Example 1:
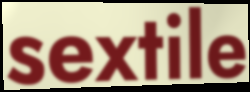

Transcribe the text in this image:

sextile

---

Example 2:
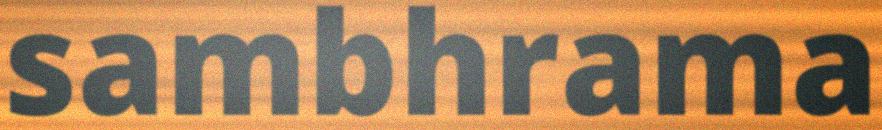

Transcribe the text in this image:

sambhrama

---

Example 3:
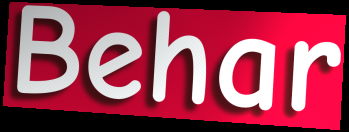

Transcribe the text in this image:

Behar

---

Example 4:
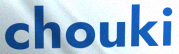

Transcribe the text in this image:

chouki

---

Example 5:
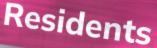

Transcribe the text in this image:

Residents